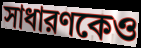
সাধারণকেও